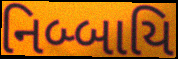
નિબ્બાયિ